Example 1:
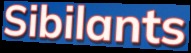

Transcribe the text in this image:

Sibilants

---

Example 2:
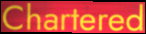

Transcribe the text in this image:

Chartered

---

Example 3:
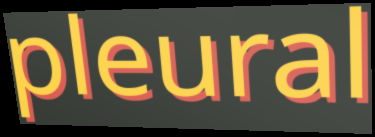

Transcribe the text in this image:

pleural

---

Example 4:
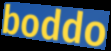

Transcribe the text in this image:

boddo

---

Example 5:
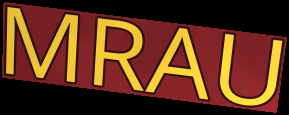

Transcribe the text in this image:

MRAU